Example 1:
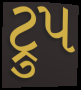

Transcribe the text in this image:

ટ્રુપ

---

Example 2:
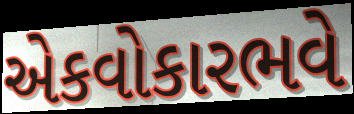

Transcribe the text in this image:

એકવોકારભવે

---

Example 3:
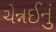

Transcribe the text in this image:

ચેન્નઈનું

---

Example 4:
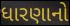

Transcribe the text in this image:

ધારણાનો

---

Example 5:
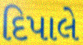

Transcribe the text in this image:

દિપાલે